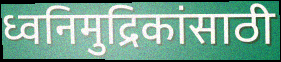
ध्वनिमुद्रिकांसाठी